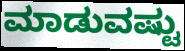
ಮಾಡುವಷ್ಟು